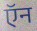
ऍन